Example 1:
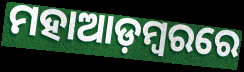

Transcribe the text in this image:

ମହାଆଡ଼ମ୍ୱରରେ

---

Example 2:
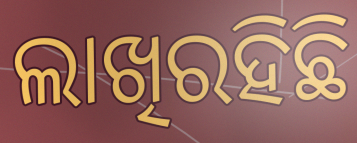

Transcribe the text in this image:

ଲାଖିରହିଛି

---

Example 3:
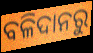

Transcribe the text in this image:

ବଳିଦାନରୁ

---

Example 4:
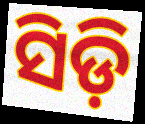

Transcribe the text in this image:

ସିଡ଼ି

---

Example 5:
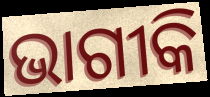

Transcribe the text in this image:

ଭାଗୀକି